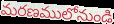
మరణములోనుండి